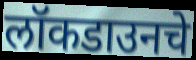
लॉकडाउनचे